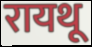
रायथू